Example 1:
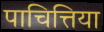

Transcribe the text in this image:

पाचित्तिया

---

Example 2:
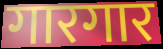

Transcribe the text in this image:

गारगार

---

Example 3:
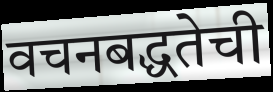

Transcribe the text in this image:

वचनबद्धतेची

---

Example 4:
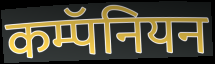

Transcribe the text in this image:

कम्पॅनियन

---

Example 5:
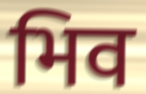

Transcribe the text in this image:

भिव